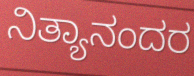
ನಿತ್ಯಾನಂದರ